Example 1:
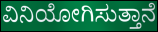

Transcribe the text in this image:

ವಿನಿಯೋಗಿಸುತ್ತಾನೆ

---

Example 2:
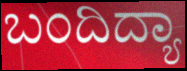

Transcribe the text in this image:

ಬಂದಿದ್ಯಾ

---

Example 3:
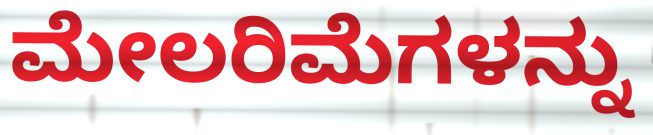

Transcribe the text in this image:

ಮೇಲರಿಮೆಗಳನ್ನು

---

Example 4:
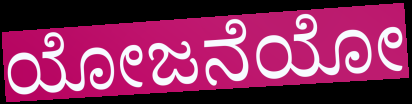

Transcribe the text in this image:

ಯೋಜನೆಯೋ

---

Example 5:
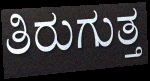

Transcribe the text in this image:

ತಿರುಗುತ್ತ